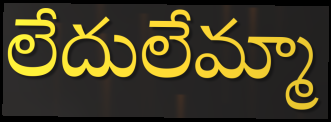
లేదులేమ్మా